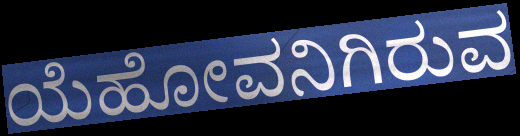
ಯೆಹೋವನಿಗಿರುವ